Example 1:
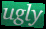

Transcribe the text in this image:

ugly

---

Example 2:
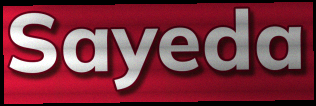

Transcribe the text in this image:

Sayeda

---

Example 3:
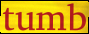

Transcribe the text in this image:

tumb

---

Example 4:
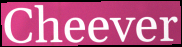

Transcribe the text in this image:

Cheever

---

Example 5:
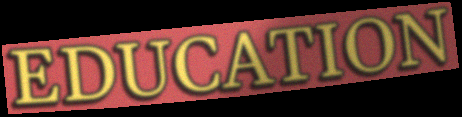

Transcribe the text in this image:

EDUCATION